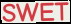
SWET